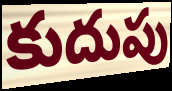
కుదుపు